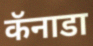
कॅनाडा